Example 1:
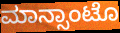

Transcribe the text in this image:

ಮಾನ್ಸಾಂಟೊ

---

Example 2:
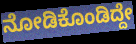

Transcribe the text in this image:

ನೋಡಿಕೊಂಡಿದ್ದೇ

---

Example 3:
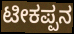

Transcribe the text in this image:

ಟೀಕಪ್ಪನ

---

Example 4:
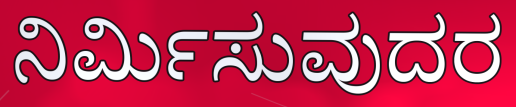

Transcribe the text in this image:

ನಿರ್ಮಿಸುವುದರ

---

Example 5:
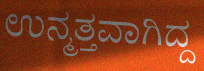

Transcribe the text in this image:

ಉನ್ಮತ್ತವಾಗಿದ್ದ